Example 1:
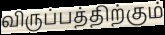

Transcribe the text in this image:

விருப்பத்திற்கும்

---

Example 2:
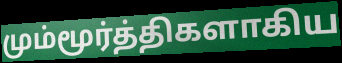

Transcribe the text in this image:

மும்மூர்த்திகளாகிய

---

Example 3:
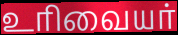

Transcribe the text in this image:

உரிவையர்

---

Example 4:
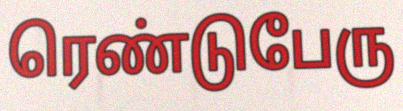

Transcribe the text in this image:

ரெண்டுபேரு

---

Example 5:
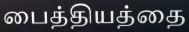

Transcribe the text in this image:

பைத்தியத்தை